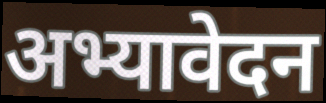
अभ्यावेदन